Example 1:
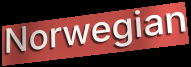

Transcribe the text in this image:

Norwegian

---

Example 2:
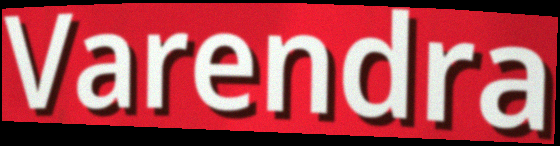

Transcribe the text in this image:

Varendra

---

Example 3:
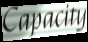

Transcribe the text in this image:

Capacity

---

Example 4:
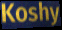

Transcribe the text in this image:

Koshy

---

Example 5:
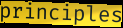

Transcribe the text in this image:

principles